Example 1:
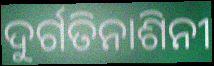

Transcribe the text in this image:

ଦୁର୍ଗତିନାଶିନୀ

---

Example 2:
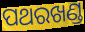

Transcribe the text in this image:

ପଥରଖଣ୍ଡ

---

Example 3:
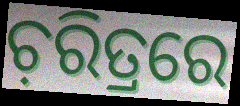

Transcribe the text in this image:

ଚ଼ରିତ୍ରରେ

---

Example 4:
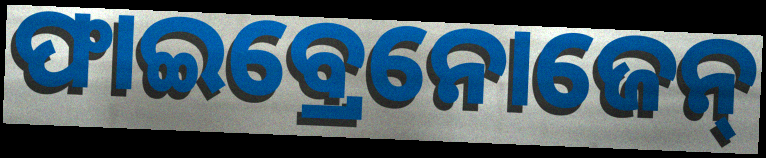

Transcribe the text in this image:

ଫାଇବ୍ରେନୋଜେନ୍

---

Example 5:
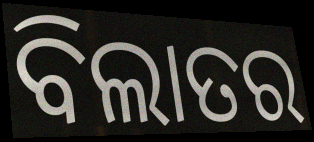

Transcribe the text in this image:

ବିଲାତର